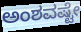
ಅಂಶವಷ್ಟೇ